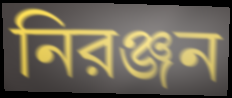
নিরঞ্জন